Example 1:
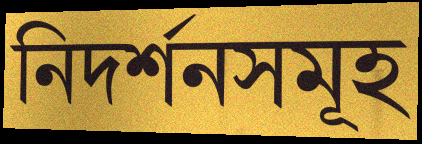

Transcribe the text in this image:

নিদর্শনসমূহ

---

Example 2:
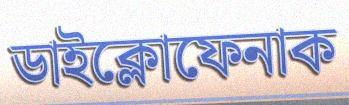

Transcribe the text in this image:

ডাইক্লোফেনাক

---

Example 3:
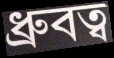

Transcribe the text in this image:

ধ্রুবত্ব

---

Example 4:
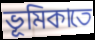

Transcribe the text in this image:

ভূমিকাতে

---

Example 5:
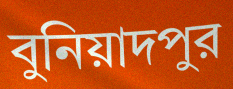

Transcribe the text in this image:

বুনিয়াদপুর